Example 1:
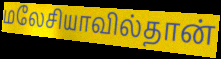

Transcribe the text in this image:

மலேசியாவில்தான்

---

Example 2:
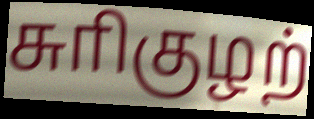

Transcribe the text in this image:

சுரிகுழற்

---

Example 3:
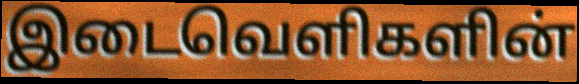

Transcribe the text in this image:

இடைவெளிகளின்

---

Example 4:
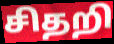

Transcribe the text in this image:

சிதறி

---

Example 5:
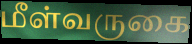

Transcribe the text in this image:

மீள்வருகை